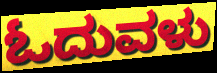
ಓದುವಳು